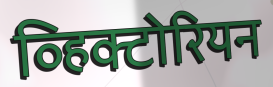
व्हिक्टोरियन